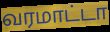
வரமாட்டா